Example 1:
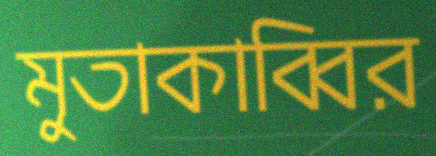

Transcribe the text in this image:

মুতাকাব্বির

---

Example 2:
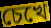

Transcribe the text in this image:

চেখে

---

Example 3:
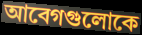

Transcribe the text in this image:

আবেগগুলোকে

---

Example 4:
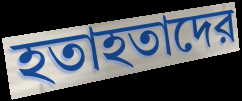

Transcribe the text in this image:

হতাহতাদের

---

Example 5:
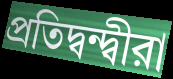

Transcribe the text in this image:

প্রতিদ্বন্দ্বীরা